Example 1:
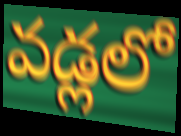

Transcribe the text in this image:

వడ్లలో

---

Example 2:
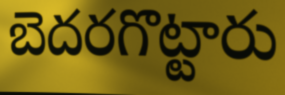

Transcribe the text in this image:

బెదరగొట్టారు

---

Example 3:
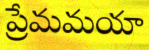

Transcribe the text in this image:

ప్రేమమయా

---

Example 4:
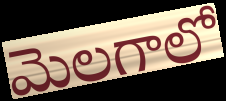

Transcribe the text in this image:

మెలగాలో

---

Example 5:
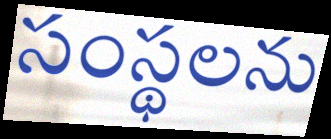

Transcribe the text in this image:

సంస్థలను